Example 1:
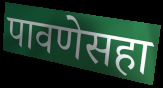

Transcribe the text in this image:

पावणेसहा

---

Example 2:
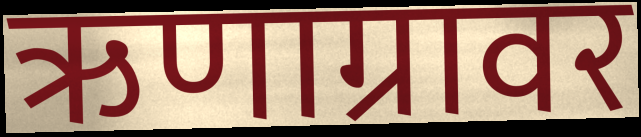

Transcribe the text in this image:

ऋणाग्रावर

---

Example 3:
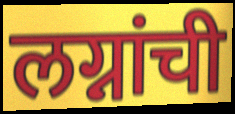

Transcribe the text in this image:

लग्नांची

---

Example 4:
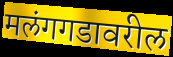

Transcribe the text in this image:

मलंगगडावरील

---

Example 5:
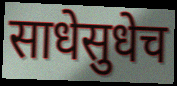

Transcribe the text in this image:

साधेसुधेच